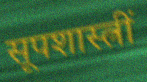
सूपशास्त्रीं